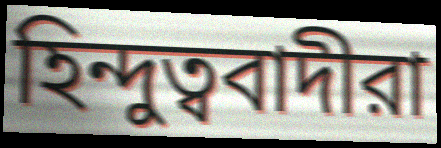
হিন্দুত্ববাদীরা